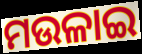
ମଉଳାଇ